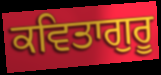
ਕਵਿਤਾਗੁਰੂ